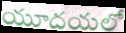
యూదయలో